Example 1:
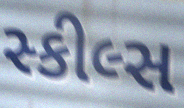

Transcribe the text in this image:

સ્કીલ્સ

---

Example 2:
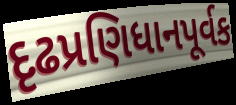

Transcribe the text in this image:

દૃઢપ્રણિધાનપૂર્વક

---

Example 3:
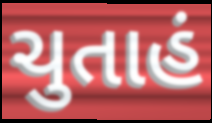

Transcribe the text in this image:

ચુતાહં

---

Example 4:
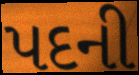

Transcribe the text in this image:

પદની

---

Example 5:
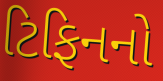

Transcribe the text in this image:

ટિફિનનો